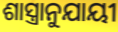
ଶାସ୍ତ୍ରାନୁଯାୟୀ